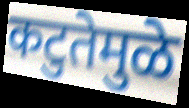
कटुतेमुळे